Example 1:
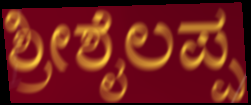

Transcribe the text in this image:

ಶ್ರೀಶೈಲಪ್ಪ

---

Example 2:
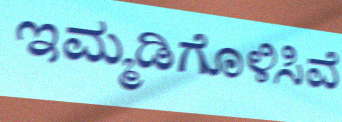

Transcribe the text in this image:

ಇಮ್ಮಡಿಗೊಳಿಸಿವೆ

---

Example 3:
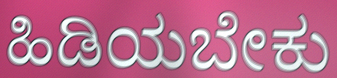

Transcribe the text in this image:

ಹಿಡಿಯಬೇಕು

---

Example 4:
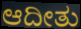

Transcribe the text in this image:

ಆದೀತು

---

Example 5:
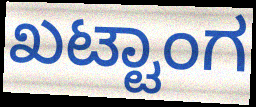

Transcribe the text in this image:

ಖಟ್ಟಾಂಗ